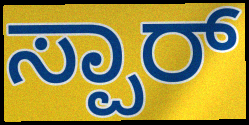
ಸ್ಪಾರ್